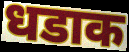
धडाक